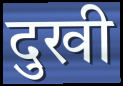
दुखी